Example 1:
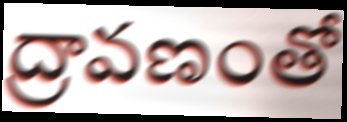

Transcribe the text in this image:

ద్రావణంతో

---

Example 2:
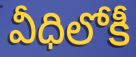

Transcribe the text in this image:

వీధిలోకీ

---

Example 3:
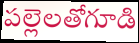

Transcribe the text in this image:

పల్లెలతోగూడి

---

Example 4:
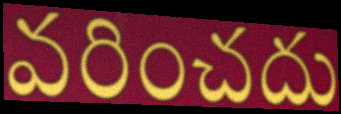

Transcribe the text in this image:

వరించదు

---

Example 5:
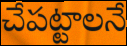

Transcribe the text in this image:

చేపట్టాలనే